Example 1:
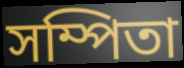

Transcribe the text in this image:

সম্পিতা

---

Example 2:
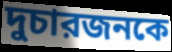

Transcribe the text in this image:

দুচারজনকে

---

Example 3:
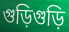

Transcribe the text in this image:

গুড়িগুড়ি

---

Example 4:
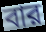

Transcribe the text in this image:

বার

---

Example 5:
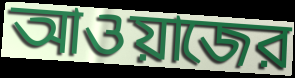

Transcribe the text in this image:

আওয়াজের